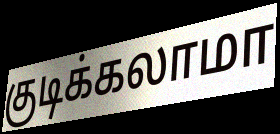
குடிக்கலாமா